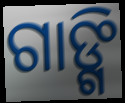
ଗାଙ୍ଗି